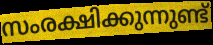
സംരക്ഷിക്കുന്നുണ്ട്